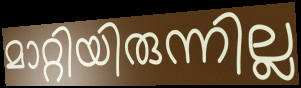
മാറ്റിയിരുന്നില്ല